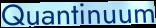
Quantinuum